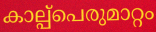
കാല്പ്പെരുമാറ്റം